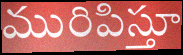
మురిపిస్తూ